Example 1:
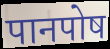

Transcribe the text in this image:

पानपोष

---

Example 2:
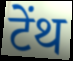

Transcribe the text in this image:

टेंथ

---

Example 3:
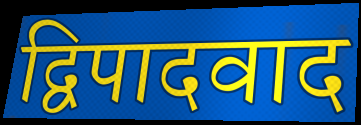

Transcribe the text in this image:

द्विपादवाद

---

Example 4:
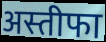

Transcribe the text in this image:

अस्तीफा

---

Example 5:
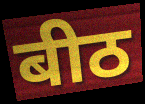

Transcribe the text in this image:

बीठ